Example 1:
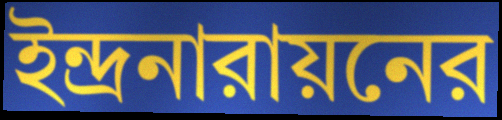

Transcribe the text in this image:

ইন্দ্রনারায়নের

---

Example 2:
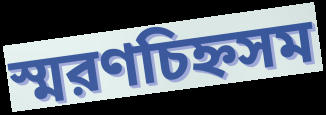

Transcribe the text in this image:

স্মরণচিহ্নসম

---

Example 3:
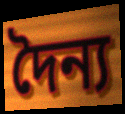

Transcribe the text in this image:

দৈন্য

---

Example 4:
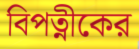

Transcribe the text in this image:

বিপত্নীকের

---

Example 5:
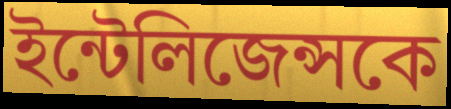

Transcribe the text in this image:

ইন্টেলিজেন্সকে